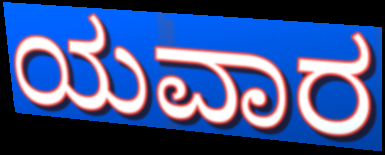
ಯವಾರ